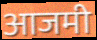
आजमी